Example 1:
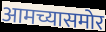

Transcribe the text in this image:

आमच्यासमोर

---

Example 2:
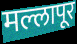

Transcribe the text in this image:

मल्लापूर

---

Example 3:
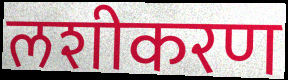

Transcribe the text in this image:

लशीकरण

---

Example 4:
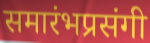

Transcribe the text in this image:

समारंभप्रसंगी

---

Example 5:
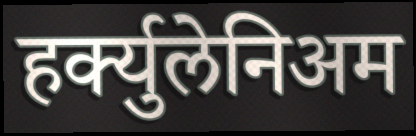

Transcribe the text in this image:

हर्क्युलेनिअम